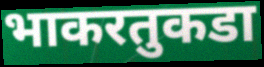
भाकरतुकडा